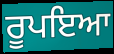
ਰੂਪਇਆ